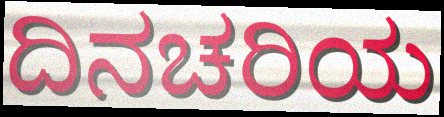
ದಿನಚರಿಯ